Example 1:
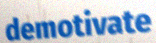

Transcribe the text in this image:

demotivate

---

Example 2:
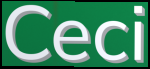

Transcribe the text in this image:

Ceci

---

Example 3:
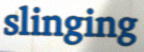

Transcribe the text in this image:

slinging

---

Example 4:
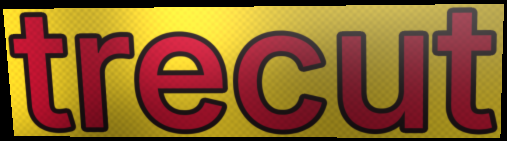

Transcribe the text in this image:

trecut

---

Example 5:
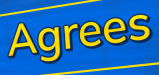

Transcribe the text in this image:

Agrees